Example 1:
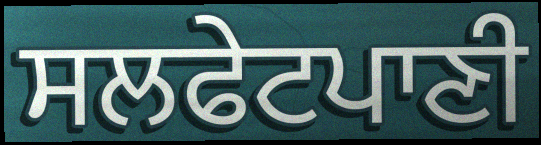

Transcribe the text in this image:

ਸਲਫੇਟਪਾਣੀ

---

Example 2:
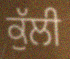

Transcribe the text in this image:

ਕੁੱਲੀ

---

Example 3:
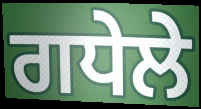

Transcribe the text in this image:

ਗਧੇਲੇ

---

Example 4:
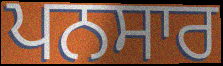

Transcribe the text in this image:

ਪਨਸਾਰ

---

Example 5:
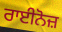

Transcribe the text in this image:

ਰਾਈਨੋਜ਼